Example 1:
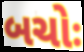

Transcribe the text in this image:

બચોઃ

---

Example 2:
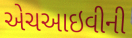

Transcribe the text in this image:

એચઆઇવીની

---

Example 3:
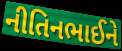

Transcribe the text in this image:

નીતિનભાઈને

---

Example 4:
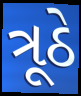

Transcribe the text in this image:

ત્રૂઠે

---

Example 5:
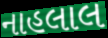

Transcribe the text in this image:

નાહલાલ